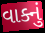
વાક્નું